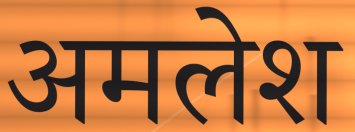
अमलेश